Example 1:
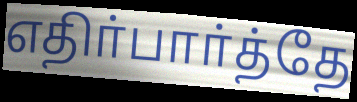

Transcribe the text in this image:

எதிர்பார்த்தே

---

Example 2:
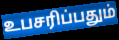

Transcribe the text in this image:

உபசரிப்பதும்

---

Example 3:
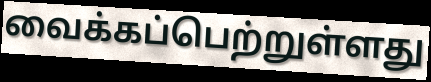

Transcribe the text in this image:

வைக்கப்பெற்றுள்ளது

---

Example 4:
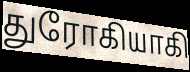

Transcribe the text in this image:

துரோகியாகி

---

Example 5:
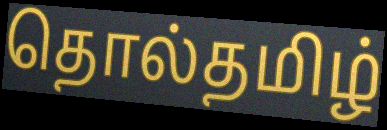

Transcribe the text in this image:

தொல்தமிழ்